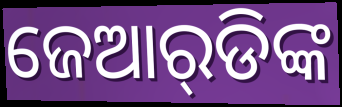
ଜେଆର୍‌ଡିଙ୍କ